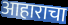
आहाराचा